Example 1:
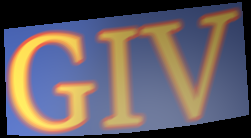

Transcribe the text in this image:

GIV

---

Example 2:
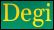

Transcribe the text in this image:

Degi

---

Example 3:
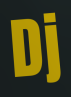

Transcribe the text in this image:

Dj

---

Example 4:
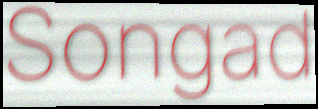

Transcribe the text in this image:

Songad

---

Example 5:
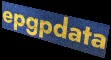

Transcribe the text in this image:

epgpdata